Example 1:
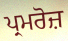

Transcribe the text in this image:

ਪ੍ਰਮਰੋਜ਼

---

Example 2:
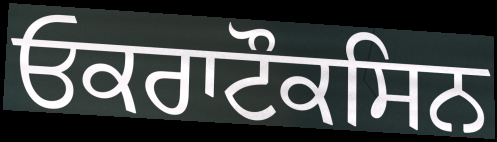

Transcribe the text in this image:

ਓਕਰਾਟੌਕਸਿਨ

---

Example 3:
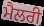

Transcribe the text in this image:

ਮੈਲਰੀ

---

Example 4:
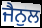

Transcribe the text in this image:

ਜੈਨੁਲ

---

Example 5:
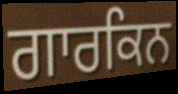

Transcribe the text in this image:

ਗਾਰਕਿਨ